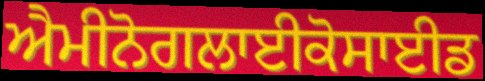
ਐਮੀਨੋਗਲਾਈਕੋਸਾਈਡ